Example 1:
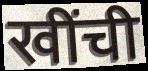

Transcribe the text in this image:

खींची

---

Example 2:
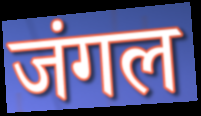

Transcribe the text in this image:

जंगल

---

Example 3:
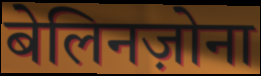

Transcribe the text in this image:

बेलिनज़ोना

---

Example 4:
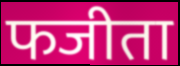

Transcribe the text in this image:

फजीता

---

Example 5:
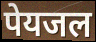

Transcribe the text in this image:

पेयजल